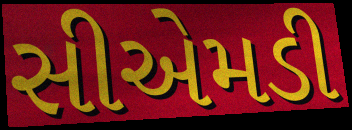
સીએમડી